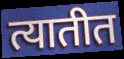
त्यातीत